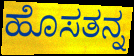
ಹೊಸತನ್ನ